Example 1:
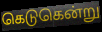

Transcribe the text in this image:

கெடுகென்று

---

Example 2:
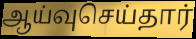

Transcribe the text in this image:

ஆய்வுசெய்தார்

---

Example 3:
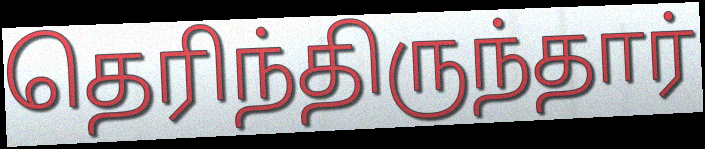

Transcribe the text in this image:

தெரிந்திருந்தார்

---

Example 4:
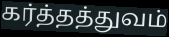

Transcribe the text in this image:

கர்த்தத்துவம்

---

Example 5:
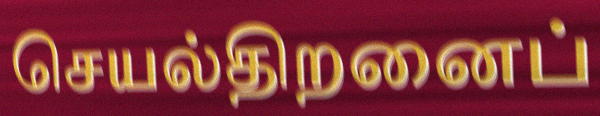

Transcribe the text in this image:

செயல்திறனைப்